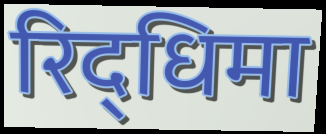
रिद्धिमा